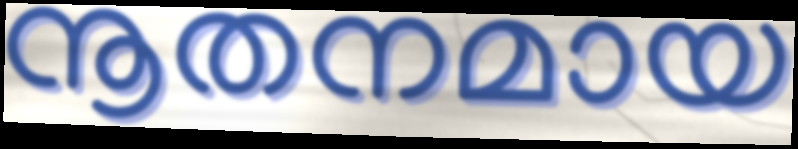
നൂതനമായ